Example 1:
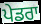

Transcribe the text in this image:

ਪੇਡਰਾ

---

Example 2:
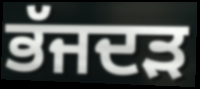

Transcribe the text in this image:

ਭੱਜਦੜ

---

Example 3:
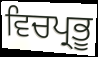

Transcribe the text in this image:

ਵਿਚਪ੍ਰਭੂ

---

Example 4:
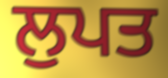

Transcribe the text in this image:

ਲੁਪਤ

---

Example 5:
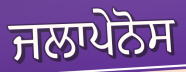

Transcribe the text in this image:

ਜਲਾਪੇਨੋਸ